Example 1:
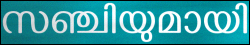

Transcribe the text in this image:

സഞ്ചിയുമായി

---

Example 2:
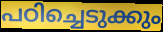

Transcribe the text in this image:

പഠിച്ചെടുക്കും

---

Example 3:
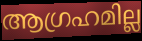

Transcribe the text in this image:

ആഗ്രഹമില്ല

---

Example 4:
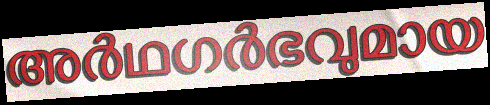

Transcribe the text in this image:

അർഥഗർഭവുമായ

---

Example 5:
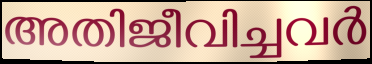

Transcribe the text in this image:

അതിജീവിച്ചവർ